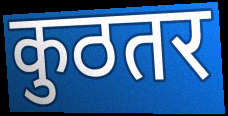
कुठतर